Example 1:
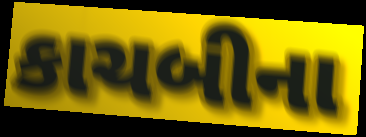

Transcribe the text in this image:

કાચબીના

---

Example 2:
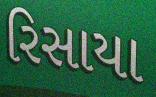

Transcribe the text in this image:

રિસાયા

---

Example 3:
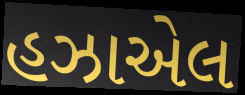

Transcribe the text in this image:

હઝાએલ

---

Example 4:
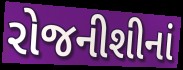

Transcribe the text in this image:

રોજનીશીનાં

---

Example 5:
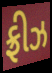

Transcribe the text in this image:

ફ્રીઝ